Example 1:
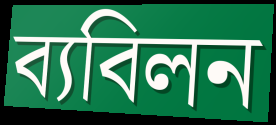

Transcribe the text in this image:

ব্যবিলন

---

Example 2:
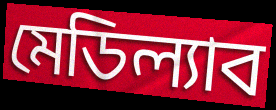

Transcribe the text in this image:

মেডিল্যাব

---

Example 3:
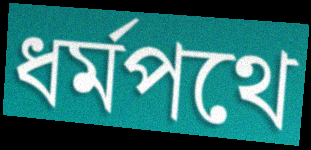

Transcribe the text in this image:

ধর্মপথে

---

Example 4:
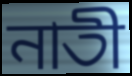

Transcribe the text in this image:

নাতী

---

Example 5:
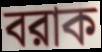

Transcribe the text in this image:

বরাক